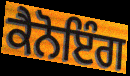
ਕੈਨੋਇੰਗ